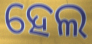
ହେଲ